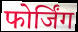
फोर्जिंग